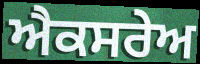
ਐਕਸਰੇਅ